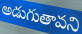
అడుగుతావని